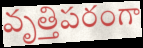
వృత్తిపరంగా